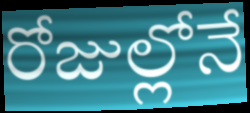
రోజుల్లోనే